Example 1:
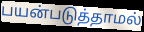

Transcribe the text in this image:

பயன்படுத்தாமல்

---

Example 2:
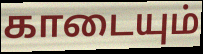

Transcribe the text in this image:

காடையும்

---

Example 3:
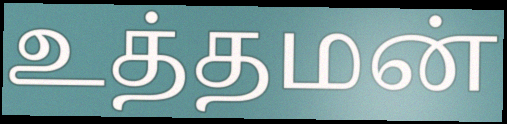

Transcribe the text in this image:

உத்தமன்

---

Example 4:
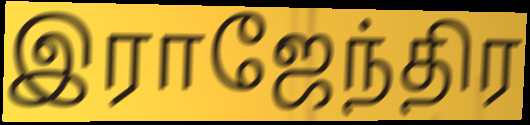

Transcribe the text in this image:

இராஜேந்திர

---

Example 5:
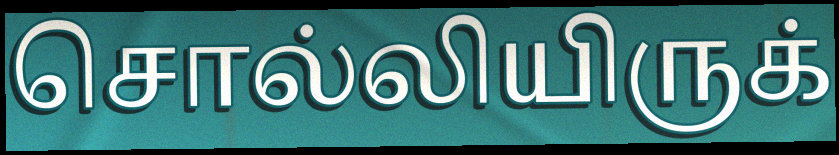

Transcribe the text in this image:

சொல்லியிருக்